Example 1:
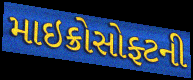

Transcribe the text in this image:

માઇક્રોસોફ્ટની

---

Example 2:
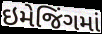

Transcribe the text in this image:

ઇમેજિંગમાં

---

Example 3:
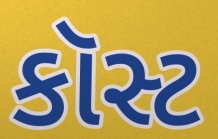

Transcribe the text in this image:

કૉસ્ટ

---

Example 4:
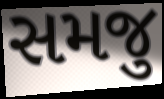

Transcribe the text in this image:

સમજુ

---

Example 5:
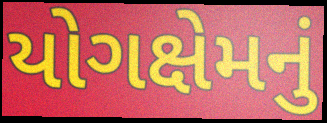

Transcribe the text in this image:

યોગક્ષેમનું